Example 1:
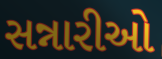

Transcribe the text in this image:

સન્નારીઓ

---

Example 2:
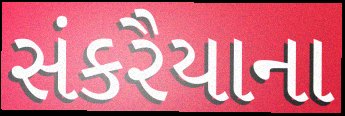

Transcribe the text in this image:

સંકરૈયાના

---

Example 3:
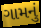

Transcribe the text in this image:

ગામનું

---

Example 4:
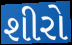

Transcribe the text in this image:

શીરો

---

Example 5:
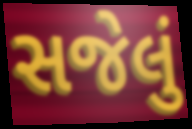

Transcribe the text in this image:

સજેલું